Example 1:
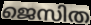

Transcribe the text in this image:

ജെസിത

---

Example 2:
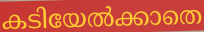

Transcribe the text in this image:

കടിയേൽക്കാതെ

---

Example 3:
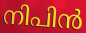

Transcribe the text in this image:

നിപിൻ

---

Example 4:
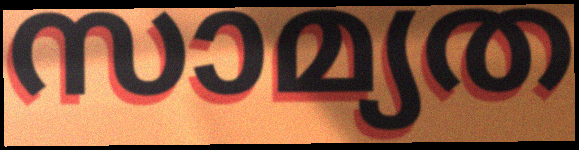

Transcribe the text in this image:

സാമ്യത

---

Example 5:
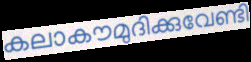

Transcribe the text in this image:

കലാകൗമുദിക്കുവേണ്ടി